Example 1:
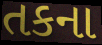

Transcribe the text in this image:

તકના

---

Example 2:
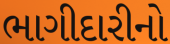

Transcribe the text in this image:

ભાગીદારીનો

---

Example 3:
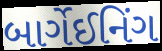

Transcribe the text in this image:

બાર્ગેઈનિંગ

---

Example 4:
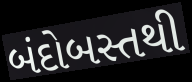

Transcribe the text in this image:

બંદોબસ્તથી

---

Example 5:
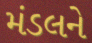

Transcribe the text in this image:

મંડલને